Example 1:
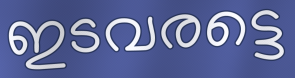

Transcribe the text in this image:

ഇടവരട്ടെ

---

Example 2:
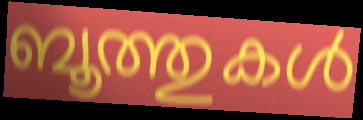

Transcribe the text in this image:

ബൂത്തുകൾ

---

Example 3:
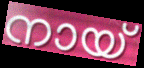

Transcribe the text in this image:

നായ്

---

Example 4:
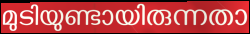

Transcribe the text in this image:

മുടിയുണ്ടായിരുന്നതാ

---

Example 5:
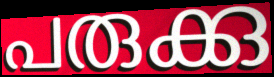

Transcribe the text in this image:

പരുക്കു